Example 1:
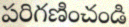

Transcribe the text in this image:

పరిగణించండి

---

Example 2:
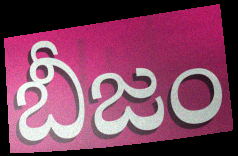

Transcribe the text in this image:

బీజం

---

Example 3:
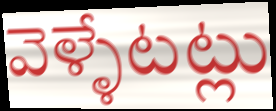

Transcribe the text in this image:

వెళ్ళేటట్లు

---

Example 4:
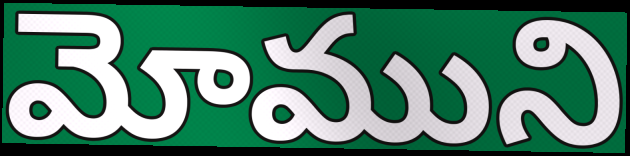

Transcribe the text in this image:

మోముని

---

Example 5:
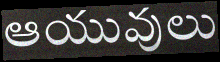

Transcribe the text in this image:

ఆయువులు